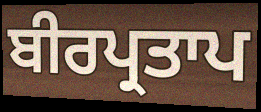
ਬੀਰਪ੍ਰਤਾਪ